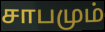
சாபமும்